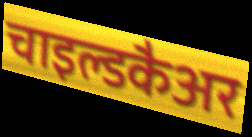
चाइल्डकैअर